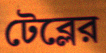
টেব্লের